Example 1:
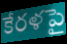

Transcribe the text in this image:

కేరళపై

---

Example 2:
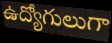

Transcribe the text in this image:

ఉద్యోగులుగా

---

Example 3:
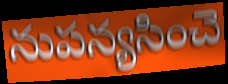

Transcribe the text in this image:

నుపన్యసించె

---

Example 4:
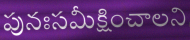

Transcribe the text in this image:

పునఃసమీక్షించాలని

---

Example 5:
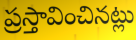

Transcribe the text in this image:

ప్రస్తావించినట్లు